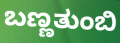
ಬಣ್ಣತುಂಬಿ